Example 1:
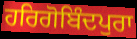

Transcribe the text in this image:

ਹਰਿਗੋਬਿੰਦਪੁਰਾ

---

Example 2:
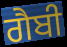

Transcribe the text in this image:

ਗੈਬੀ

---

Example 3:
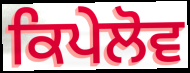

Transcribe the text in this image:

ਕਿਪੇਲੋਵ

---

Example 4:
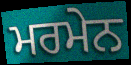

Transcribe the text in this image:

ਮਰਮੇਨ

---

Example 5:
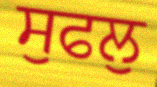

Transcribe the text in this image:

ਸੁਫਲੁ